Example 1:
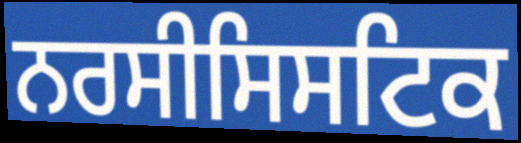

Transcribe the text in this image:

ਨਰਸੀਸਿਸਟਿਕ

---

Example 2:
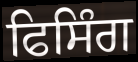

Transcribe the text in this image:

ਫਿਸਿੰਗ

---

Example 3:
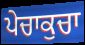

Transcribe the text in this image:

ਪੇਚਾਕੁਚਾ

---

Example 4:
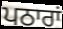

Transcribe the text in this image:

ਪਠਾਰਾਂ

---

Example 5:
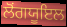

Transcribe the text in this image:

ਲੋਂਗਯੂਇਲ